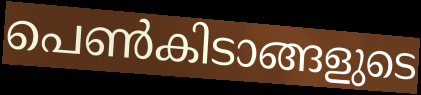
പെൺകിടാങ്ങളുടെ